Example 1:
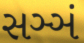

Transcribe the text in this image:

સઞ્ઞં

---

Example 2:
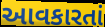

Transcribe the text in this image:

આવકારતાં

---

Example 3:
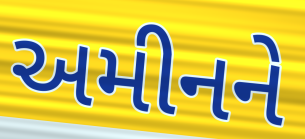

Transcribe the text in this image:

અમીનને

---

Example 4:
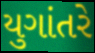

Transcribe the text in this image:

યુગાંતરે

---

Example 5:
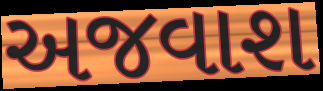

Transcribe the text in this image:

અજવાશ